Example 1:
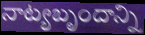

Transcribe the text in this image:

నాట్యబృందాన్ని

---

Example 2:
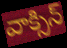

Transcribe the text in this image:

వాక్సిన్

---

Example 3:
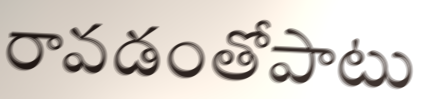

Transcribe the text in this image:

రావడంతోపాటు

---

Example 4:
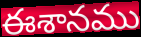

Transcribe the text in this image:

ఈశానము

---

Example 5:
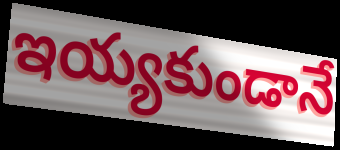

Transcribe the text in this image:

ఇయ్యకుండానే